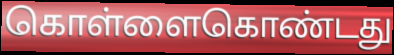
கொள்ளைகொண்டது